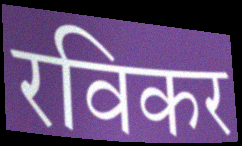
रविकर